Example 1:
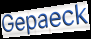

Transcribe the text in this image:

Gepaeck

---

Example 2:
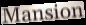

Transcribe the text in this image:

Mansion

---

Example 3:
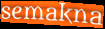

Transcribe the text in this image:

semakna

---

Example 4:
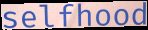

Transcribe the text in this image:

selfhood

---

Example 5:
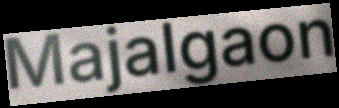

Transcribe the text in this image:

Majalgaon